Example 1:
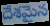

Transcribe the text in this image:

దేశమైన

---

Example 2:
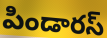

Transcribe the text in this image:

పిండారస్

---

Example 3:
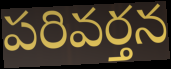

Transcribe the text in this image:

పరివర్తన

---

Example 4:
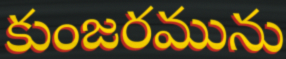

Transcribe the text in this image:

కుంజరమును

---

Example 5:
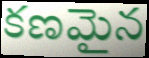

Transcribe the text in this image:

కణమైన